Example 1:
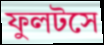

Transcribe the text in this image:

ফুলটসে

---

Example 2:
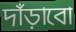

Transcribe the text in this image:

দাঁড়াবো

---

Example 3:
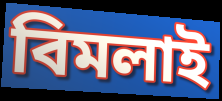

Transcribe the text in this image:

বিমলাই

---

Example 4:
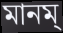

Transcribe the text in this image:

মানম্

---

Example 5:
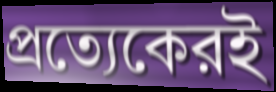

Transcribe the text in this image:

প্রত্যেকেরই